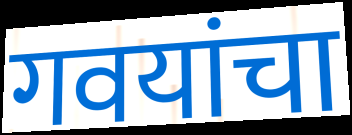
गवयांचा